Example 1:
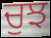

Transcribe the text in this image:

ਚੁਝ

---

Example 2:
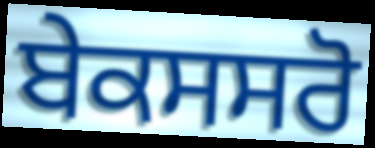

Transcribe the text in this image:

ਬੇਕਸਸਰੋ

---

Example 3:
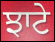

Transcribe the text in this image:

ਝਾਟੇ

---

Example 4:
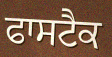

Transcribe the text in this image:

ਫਾਸਟੈਕ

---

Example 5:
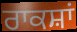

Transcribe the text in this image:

ਰਾਕਸ਼ਾਂ